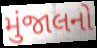
મુંજાલનો